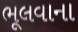
ભૂલવાના